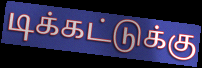
டிக்கட்டுக்கு